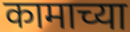
कामाच्या